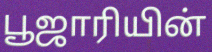
பூஜாரியின்